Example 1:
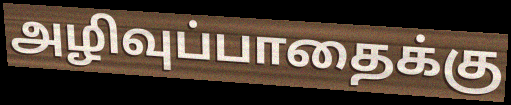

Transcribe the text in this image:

அழிவுப்பாதைக்கு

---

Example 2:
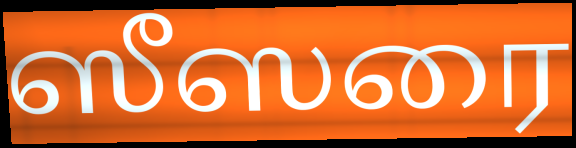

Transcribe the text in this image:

ஸீஸரை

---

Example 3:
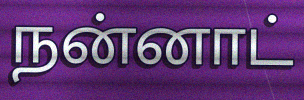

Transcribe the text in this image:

நன்னாட்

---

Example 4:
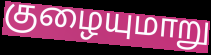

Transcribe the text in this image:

குழையுமாறு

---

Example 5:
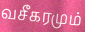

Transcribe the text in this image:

வசீகரமும்